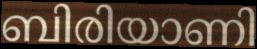
ബിരിയാണി